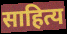
साहित्य